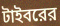
টাইবরের